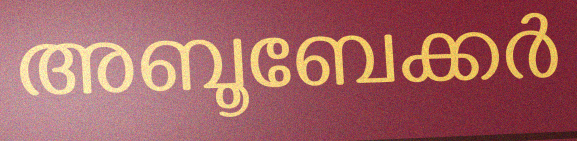
അബൂബേക്കർ